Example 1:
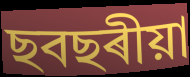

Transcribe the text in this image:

ছবছৰীয়া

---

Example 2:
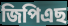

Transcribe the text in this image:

জিপিএছ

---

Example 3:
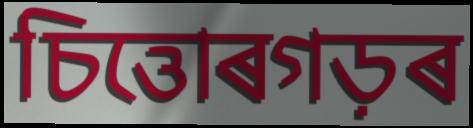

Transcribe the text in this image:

চিত্তোৰগড়ৰ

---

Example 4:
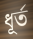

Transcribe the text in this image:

ধূৰ্ত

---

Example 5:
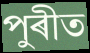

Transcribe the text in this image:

পুৰীত